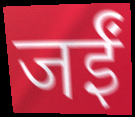
जईं